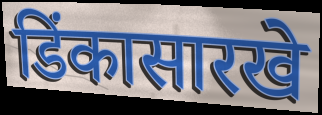
डिंकासारखे